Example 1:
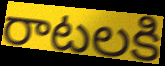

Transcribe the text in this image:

రాటలకి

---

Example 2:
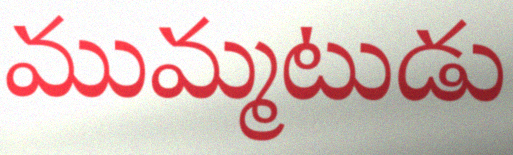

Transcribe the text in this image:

ముమ్మటుడు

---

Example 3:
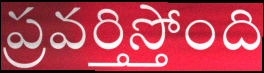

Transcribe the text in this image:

ప్రవర్తిస్తోంది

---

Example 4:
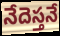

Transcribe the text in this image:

నేదెస్తనే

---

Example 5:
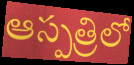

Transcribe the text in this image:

ఆస్పత్రిలో